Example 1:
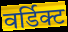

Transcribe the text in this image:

वर्डिक्ट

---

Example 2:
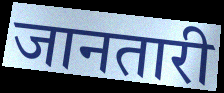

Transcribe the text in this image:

जानतारी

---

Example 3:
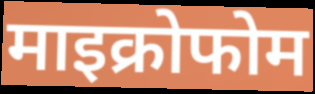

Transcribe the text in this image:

माइक्रोफोम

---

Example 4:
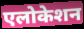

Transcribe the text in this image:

एलोकेशन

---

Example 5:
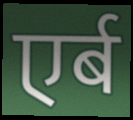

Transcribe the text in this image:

एर्ब